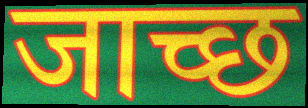
जाच्छ